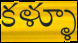
కళ్ళూ